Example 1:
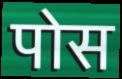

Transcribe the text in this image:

पोस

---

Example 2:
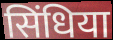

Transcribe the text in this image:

सिंधिया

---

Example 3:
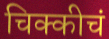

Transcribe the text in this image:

चिक्कीचं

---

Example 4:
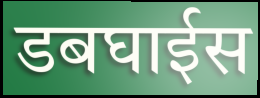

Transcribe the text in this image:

डबघाईस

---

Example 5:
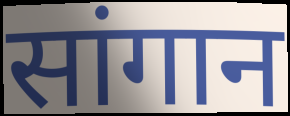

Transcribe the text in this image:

सांगान